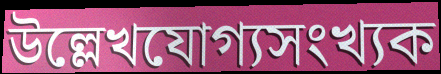
উল্লেখযোগ্যসংখ্যক